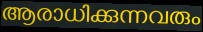
ആരാധിക്കുന്നവരും